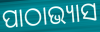
ପାଠାଭ୍ୟାସ